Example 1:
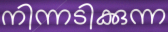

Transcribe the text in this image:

നിന്നടിക്കുന്ന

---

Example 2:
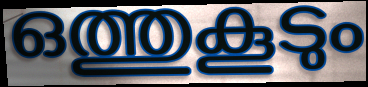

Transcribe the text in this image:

ഒത്തുകൂടും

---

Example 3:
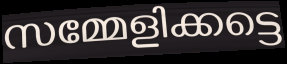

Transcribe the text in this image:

സമ്മേളിക്കട്ടെ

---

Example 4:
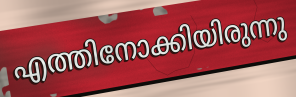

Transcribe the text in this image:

എത്തിനോക്കിയിരുന്നു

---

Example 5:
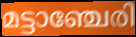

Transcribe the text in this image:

മട്ടാഞ്ചേരി